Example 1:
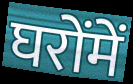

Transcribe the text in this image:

घरोंमें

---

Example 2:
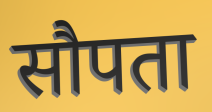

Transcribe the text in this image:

सौपता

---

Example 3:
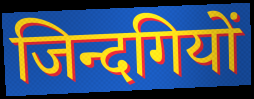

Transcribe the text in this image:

जिन्दगियों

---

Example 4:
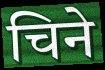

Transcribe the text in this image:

चिने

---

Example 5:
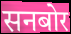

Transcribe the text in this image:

सनबोर